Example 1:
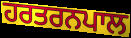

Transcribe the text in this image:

ਹਰਤਰਨਪਾਲ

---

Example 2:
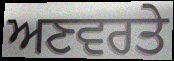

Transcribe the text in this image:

ਅਣਵਰਤੇ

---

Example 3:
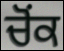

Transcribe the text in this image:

ਚੋਂਕ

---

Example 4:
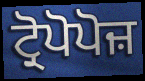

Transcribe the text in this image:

ਟ੍ਰੋਪੋਪੋਜ਼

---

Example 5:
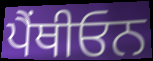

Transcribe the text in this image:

ਪੈਂਥੀਓਨ